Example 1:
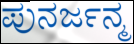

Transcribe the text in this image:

ಪುನರ್ಜನ್ಮ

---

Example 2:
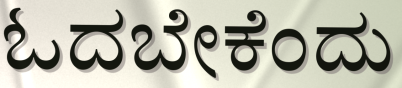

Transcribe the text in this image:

ಓದಬೇಕೆಂದು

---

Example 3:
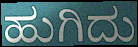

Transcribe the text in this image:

ಹುಗಿದು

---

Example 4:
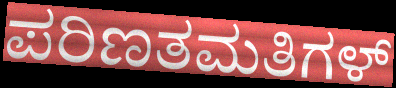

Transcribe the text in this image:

ಪರಿಣತಮತಿಗಳ್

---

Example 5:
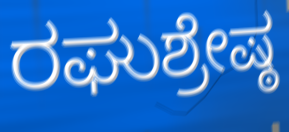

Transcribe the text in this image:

ರಘುಶ್ರೇಷ್ಠ